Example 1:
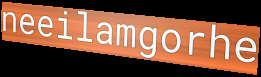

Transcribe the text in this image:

neeilamgorhe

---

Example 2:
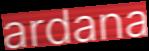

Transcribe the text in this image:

ardana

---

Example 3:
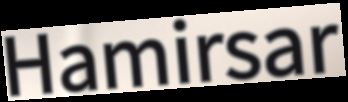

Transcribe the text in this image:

Hamirsar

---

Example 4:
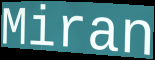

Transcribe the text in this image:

Miran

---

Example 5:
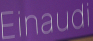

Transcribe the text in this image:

Einaudi